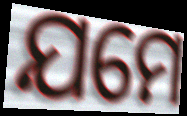
ଯମେ